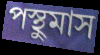
পস্থুমাস